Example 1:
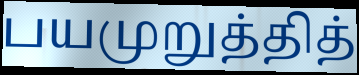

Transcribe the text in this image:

பயமுறுத்தித்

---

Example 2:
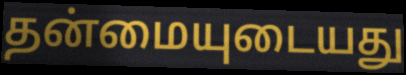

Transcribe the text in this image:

தன்மையுடையது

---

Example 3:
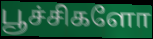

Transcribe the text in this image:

பூச்சிகளோ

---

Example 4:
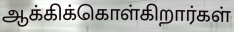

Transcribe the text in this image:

ஆக்கிக்கொள்கிறார்கள்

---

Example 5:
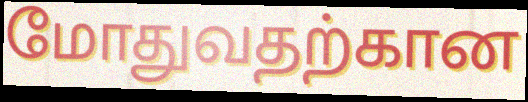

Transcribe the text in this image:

மோதுவதற்கான